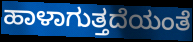
ಹಾಳಾಗುತ್ತದೆಯಂತೆ